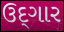
ઉદ્‌ગાર